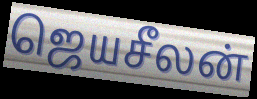
ஜெயசீலன்